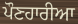
ਪੌਣਹਾਰੀਆ